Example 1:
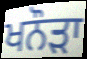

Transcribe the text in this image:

ਖਨੌੜਾ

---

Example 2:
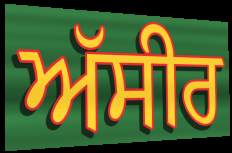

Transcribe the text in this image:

ਅੱਸੀਰ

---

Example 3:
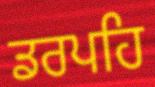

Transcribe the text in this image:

ਡਰਪਹਿ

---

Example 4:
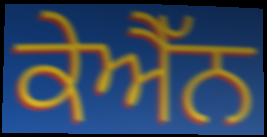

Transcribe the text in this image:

ਕੇਐੱਨ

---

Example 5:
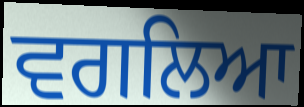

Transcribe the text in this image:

ਵਗਲਿਆ